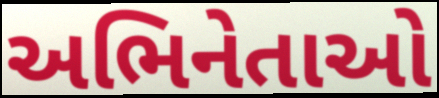
અભિનેતાઓ